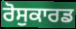
ਰੋਸੁਕਾਰਡ